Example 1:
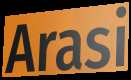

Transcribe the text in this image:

Arasi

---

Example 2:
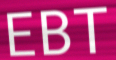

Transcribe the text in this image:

EBT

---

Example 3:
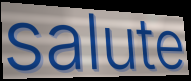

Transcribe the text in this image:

salute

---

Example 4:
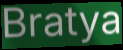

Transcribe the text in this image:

Bratya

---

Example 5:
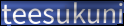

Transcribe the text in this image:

teesukuni